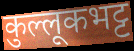
कुल्लूकभट्ट